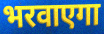
भरवाएगा